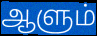
ஆளும்